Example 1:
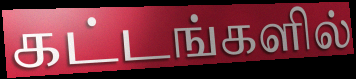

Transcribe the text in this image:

கட்டங்களில்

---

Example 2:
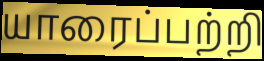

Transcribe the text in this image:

யாரைப்பற்றி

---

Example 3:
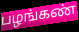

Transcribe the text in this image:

பழங்கண்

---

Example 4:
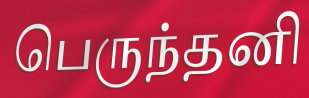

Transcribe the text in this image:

பெருந்தனி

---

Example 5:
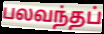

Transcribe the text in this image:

பலவந்தப்